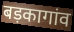
बड़कागांव